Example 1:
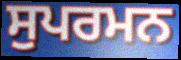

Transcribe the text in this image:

ਸੁਪਰਮਨ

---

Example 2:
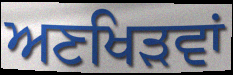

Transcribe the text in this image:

ਅਣਖਿੜਵਾਂ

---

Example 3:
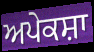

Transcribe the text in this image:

ਅਪੇਕਸ਼ਾ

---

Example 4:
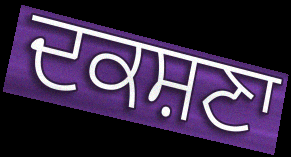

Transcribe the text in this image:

ਦਕਸ਼ਣਾ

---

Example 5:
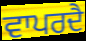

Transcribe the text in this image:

ਵਾਪਰਦੈ